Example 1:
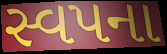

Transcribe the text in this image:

સ્વપના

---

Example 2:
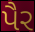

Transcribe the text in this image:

પૈર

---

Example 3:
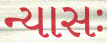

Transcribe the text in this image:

ન્યાસઃ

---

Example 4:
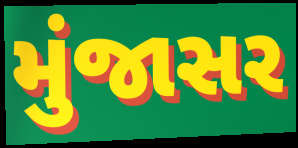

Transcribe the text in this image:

મુંજાસર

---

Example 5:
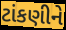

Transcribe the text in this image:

ટાંકણીને